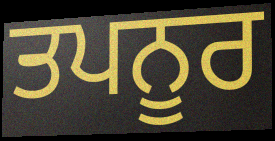
ਤਪਨੂਰ